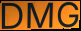
DMG